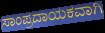
ಸಾಂಪ್ರದಾಯಕವಾಗಿ